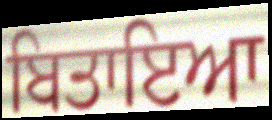
ਬਿਤਾਇਆ